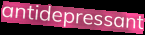
antidepressant